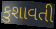
કુશાવતી